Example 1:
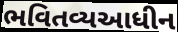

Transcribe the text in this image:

ભવિતવ્યઆધીન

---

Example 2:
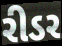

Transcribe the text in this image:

રીડર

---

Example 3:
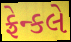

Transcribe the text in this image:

ફ્રેન્કલે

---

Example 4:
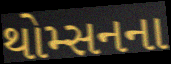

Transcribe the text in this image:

થોમ્સનના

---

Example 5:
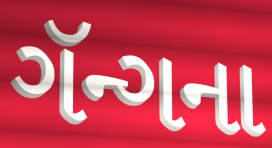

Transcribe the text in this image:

ગૅન્ગના